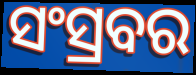
ସଂସ୍ରବର